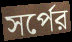
সর্পের